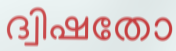
ദ്വിഷതോ